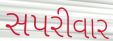
સપરીવાર